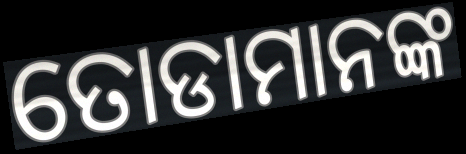
ତୋଡାମାନଙ୍କ